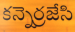
కన్నెర్రజేసి